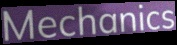
Mechanics